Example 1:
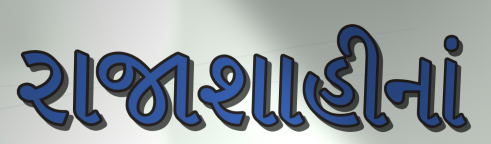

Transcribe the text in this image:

રાજાશાહીનાં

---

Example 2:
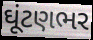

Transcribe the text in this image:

ઘૂંટણભર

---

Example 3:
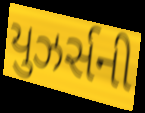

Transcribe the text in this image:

યુઝર્સની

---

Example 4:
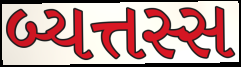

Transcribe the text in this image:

બ્યત્તસ્સ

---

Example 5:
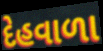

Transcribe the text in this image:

દેહવાળા